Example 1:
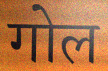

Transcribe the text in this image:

गोल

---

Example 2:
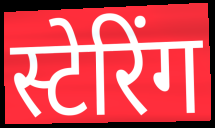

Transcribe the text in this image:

स्टेरिंग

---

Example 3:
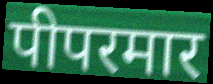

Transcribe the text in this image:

पीपरमार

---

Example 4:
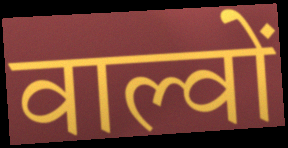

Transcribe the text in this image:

वाल्वों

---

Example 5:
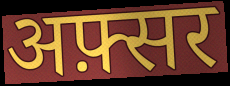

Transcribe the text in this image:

अफ़्सर